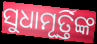
ସୁଧାମୂର୍ତ୍ତିଙ୍କ